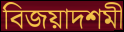
বিজয়াদশমী